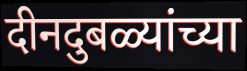
दीनदुबळ्यांच्या